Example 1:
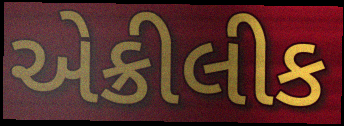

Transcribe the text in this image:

એક્રીલીક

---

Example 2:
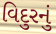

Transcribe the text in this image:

વિદુરનું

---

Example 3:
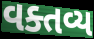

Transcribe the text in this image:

વક્તવ્ય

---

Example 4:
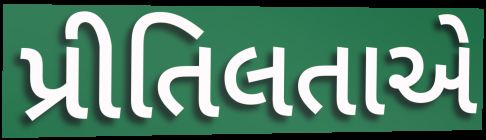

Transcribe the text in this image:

પ્રીતિલતાએ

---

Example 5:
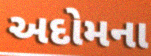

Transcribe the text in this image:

અદોમના